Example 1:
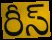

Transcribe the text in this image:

రీస్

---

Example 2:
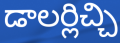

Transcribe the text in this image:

డాలర్లిచ్చి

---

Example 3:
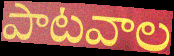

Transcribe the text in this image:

పాటవాల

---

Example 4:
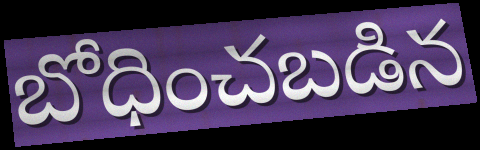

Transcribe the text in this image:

బోధించబడిన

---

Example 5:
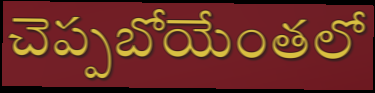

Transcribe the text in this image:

చెప్పబోయేంతలో